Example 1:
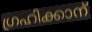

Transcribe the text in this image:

ഗ്രഹിക്കാന്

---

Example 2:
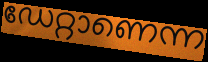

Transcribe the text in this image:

ഡേറ്റാണെന്ന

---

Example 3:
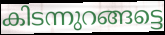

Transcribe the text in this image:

കിടന്നുറങ്ങട്ടെ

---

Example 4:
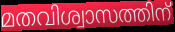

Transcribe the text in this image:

മതവിശ്വാസത്തിന്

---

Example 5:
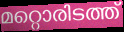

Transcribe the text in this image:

മറ്റൊരിടത്ത്